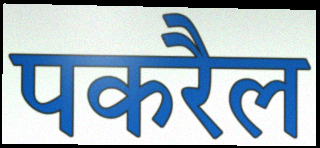
पकरैल